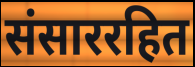
संसाररहित